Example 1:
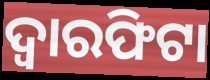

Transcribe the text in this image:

ଦ୍ୱାରଫିଟା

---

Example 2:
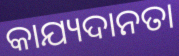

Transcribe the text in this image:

କାଯ୍ୟଦାନତା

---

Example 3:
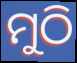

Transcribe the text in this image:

ମୁଠି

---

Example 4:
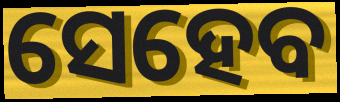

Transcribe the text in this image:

ସେହେବ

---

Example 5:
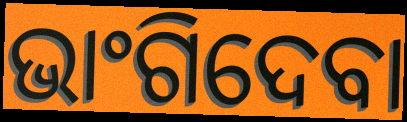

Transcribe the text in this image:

ଭାଂଗିଦେବା